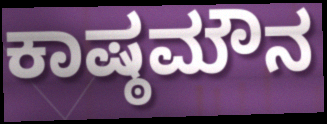
ಕಾಷ್ಠಮೌನ